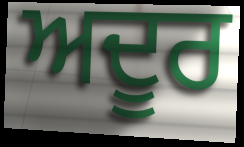
ਅਦੂਰ